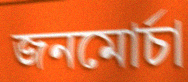
জনমোর্চা